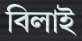
বিলাই